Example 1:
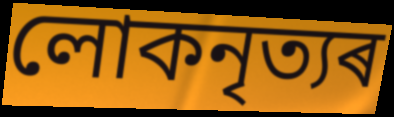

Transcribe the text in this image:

লোকনৃত্যৰ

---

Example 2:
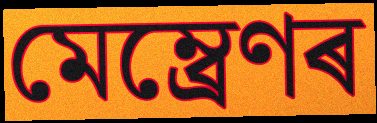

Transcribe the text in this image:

মেম্ব্ৰেণৰ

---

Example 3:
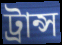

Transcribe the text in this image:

ট্ৰান্স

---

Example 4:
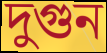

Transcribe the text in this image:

দুগুন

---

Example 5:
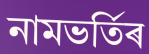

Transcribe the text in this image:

নামভৰ্তিৰ